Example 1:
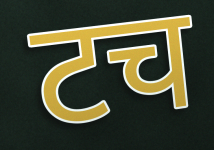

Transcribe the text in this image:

टच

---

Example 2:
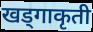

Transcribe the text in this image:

खड्गाकृती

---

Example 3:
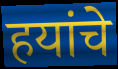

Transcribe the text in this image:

हयांचे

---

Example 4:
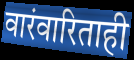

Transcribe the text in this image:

वारंवारिताही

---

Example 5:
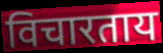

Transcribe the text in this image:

विचारताय